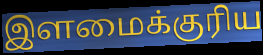
இளமைக்குரிய